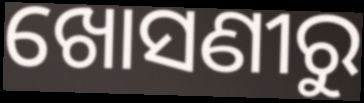
ଖୋସଣୀରୁ